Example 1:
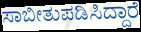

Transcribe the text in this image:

ಸಾಬೀತುಪಡಿಸಿದ್ದಾರೆ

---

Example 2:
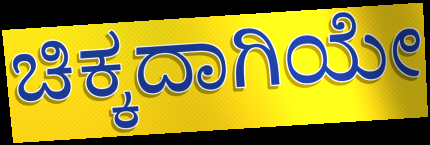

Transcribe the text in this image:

ಚಿಕ್ಕದಾಗಿಯೇ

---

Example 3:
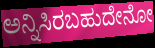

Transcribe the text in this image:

ಅನ್ನಿಸಿರಬಹುದೇನೋ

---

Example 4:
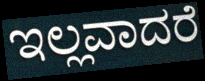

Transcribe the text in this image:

ಇಲ್ಲವಾದರೆ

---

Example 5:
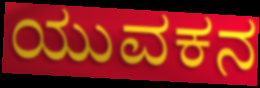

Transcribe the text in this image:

ಯುವಕನ